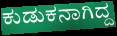
ಕುಡುಕನಾಗಿದ್ದ